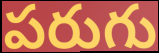
పరుగు